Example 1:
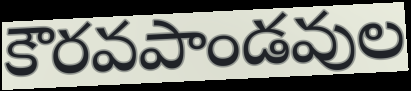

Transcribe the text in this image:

కౌరవపాండవుల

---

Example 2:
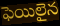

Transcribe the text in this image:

ఫెయిలైన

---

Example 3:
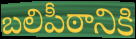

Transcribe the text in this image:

బలిపీఠానికి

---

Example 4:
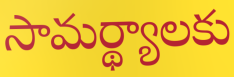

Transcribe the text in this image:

సామర్థ్యాలకు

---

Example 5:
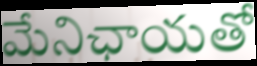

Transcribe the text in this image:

మేనిఛాయతో